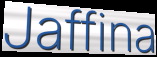
Jaffina